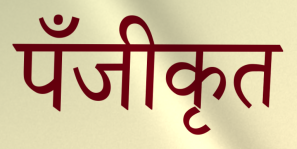
पँजीकृत